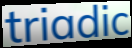
triadic